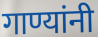
गाण्यांनी